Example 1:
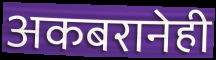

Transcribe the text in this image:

अकबरानेही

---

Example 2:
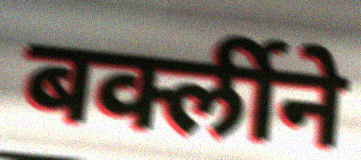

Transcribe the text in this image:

बर्क्लीने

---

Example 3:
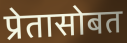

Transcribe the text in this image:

प्रेतासोबत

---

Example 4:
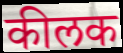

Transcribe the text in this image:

कीलक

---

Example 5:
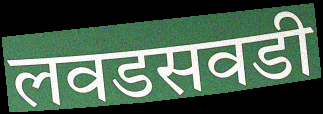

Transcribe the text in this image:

लवडसवडी